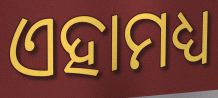
ଏହାମଧ୍ୟ